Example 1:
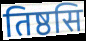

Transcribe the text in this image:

तिष्ठसि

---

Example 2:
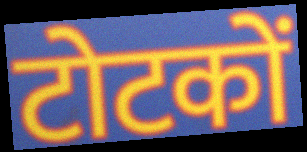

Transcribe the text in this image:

टोटकों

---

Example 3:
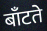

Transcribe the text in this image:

बाँटते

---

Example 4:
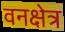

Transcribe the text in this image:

वनक्षेत्र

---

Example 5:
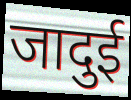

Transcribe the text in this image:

जादुई